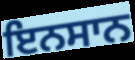
ਇਨਸਾਨ